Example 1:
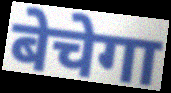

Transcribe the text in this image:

बेचेगा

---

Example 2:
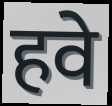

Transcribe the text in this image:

हवे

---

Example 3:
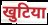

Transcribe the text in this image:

खुटिया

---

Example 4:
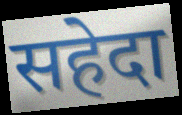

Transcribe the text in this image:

सहेदा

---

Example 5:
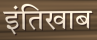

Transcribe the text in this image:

इंतिखाब